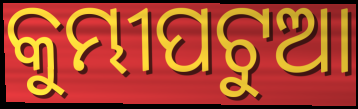
କୁମ୍ଭୀପଟୁଆ